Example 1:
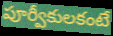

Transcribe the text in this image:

పూర్వీకులకంటే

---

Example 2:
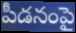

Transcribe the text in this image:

పీడనంపై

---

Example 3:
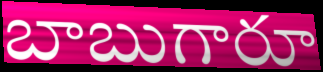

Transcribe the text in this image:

బాబుగారూ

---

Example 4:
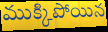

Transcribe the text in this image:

ముక్కిపోయిన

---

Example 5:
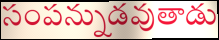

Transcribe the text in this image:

సంపన్నుడవుతాడు